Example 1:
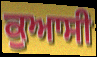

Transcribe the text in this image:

ਕੁਆਸੀ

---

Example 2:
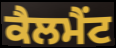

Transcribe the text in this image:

ਕੈਲਮੈਂਟ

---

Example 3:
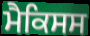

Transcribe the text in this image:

ਮੈਕਿਸਸ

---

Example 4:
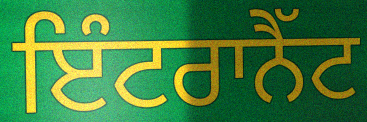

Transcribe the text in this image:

ਇੰਟਰਾਨੈੱਟ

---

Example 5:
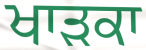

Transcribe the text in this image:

ਖਾੜਕਾ